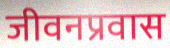
जीवनप्रवास